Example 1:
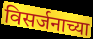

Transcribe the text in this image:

विसर्जनाच्या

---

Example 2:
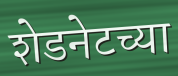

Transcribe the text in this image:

शेडनेटच्या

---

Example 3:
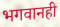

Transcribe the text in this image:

भगवानही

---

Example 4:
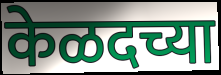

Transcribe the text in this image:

केळदच्या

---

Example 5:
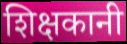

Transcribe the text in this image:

शिक्षकानी